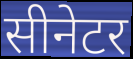
सीनेटर